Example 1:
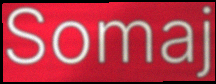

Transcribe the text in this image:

Somaj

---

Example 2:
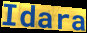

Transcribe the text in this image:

Idara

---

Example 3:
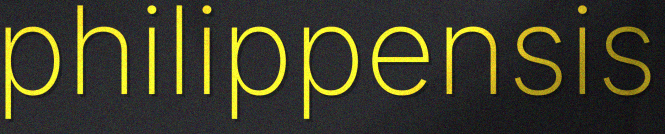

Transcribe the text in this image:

philippensis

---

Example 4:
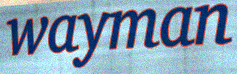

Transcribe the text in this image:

wayman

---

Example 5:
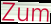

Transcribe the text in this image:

Zum